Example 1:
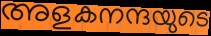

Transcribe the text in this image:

അളകനന്ദയുടെ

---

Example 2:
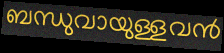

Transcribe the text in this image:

ബന്ധുവായുള്ളവൻ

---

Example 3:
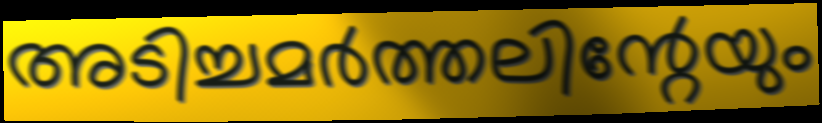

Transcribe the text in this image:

അടിച്ചമർത്തലിന്റേയും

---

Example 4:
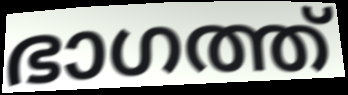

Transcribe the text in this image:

ഭാഗത്ത്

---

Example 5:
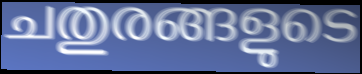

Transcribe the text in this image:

ചതുരങ്ങളുടെ